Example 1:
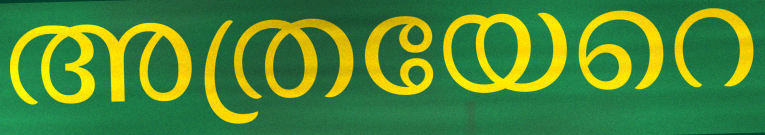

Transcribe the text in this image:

അത്രയേറെ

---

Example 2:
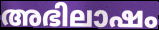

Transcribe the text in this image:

അഭിലാഷം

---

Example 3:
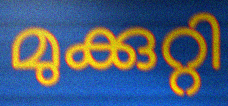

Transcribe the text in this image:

മുക്കുറ്റി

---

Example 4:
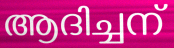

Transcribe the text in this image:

ആദിച്ചന്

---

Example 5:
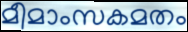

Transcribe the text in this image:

മീമാംസകമതം